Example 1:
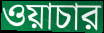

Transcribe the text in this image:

ওয়াচার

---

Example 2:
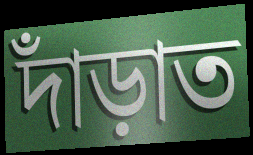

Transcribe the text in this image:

দাঁড়াত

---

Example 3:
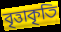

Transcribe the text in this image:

বৃত্তাকৃতি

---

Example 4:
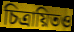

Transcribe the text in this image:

চিত্রায়িতও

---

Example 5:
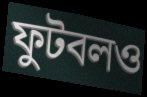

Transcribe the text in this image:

ফুটবলও